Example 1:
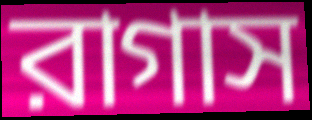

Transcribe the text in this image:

রাগাস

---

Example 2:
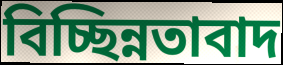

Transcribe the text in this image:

বিচ্ছিন্নতাবাদ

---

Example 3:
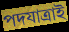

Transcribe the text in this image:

পদযাত্রাই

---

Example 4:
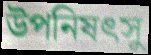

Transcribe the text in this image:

উপনিষৎসু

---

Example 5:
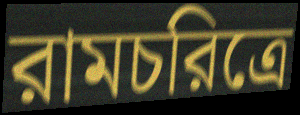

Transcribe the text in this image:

রামচরিত্রে